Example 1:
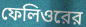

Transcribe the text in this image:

ফেলিওরের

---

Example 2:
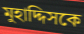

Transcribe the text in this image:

মুহাদ্দিসকে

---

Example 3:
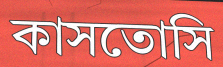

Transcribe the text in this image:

কাসতোসি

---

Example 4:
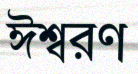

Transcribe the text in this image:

ঈশ্বরণ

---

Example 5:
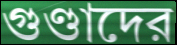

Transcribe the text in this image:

গুণ্ডাদের